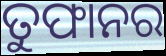
ତୁଫାନର